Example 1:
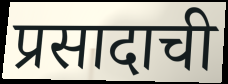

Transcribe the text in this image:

प्रसादाची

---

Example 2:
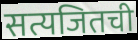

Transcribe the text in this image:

सत्यजितची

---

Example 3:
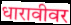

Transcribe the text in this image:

धारावीवर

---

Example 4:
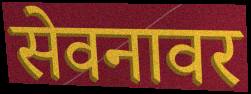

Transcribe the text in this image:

सेवनावर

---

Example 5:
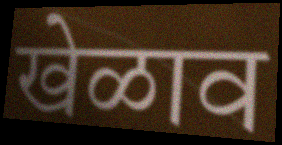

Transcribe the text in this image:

खेळाव